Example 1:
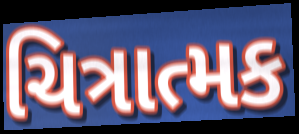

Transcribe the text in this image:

ચિત્રાત્મક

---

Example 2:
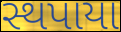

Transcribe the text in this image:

સ્થપાયા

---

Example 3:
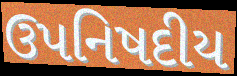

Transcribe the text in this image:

ઉપનિષદીય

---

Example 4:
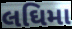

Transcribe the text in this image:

લઘિમા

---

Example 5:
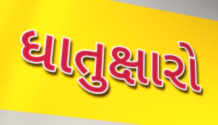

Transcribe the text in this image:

ધાતુક્ષારો